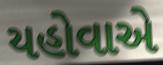
યહોવાએ